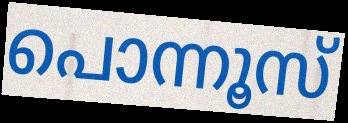
പൊന്നൂസ്